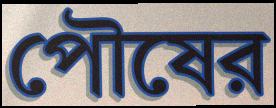
পৌষের